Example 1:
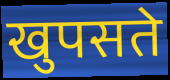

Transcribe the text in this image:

खुपसते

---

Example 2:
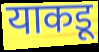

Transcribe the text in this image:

याकडू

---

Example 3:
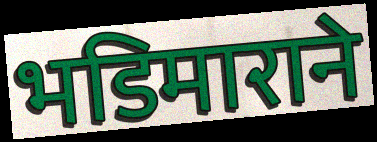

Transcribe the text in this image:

भडिमाराने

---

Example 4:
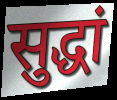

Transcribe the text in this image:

सुद्धां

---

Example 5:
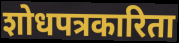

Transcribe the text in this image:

शोधपत्रकारिता